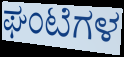
ಘಂಟೆಗಳ